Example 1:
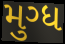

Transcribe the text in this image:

મુગ્ધ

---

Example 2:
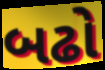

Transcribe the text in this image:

બઢો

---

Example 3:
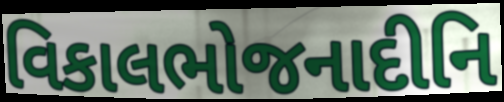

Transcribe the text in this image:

વિકાલભોજનાદીનિ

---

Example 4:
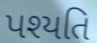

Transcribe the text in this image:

પશ્યતિ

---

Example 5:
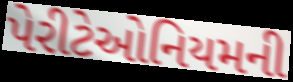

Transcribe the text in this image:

પેરીટેઓનિયમની